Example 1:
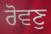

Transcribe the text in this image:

ਰੋਵਣੁ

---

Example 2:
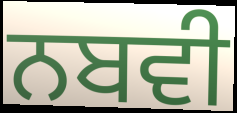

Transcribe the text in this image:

ਨਬਵੀ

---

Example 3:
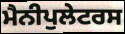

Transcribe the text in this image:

ਮੈਨੀਪੁਲੇਟਰਸ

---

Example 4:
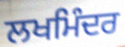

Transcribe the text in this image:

ਲਖਮਿੰਦਰ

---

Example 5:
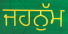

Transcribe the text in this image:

ਜਹਨੁੱਮ